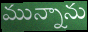
మున్నాను